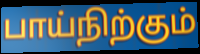
பாய்நிற்கும்